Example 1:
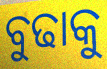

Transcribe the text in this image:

ବୁଢାକୁ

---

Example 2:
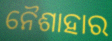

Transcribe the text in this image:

ନୈଶାହାର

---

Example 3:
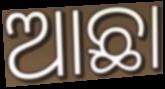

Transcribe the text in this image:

ଆଛା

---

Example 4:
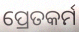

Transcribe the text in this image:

ପ୍ରେତକର୍ମ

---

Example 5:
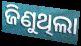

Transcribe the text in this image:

ଜିଣୁଥିଲା